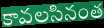
కావలసినంత